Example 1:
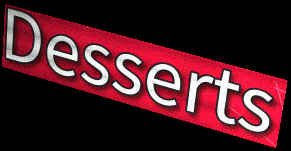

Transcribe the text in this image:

Desserts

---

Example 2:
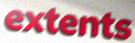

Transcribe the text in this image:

extents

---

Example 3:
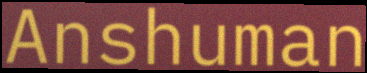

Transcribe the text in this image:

Anshuman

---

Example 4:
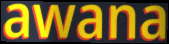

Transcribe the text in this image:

awana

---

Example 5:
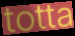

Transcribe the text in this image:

totta